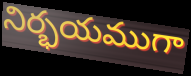
నిర్భయముగా